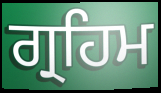
ਗ੍ਰਹਿਮ